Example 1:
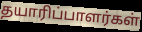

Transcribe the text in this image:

தயாரிப்பாளர்கள்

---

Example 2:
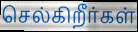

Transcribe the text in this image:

செல்கிறீர்கள்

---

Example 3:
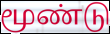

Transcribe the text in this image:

மூண்டு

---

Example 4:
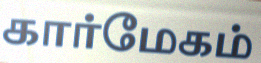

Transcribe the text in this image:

கார்மேகம்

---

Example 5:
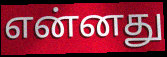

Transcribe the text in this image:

என்னது